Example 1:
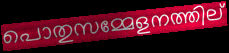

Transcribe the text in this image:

പൊതുസമ്മേളനത്തില്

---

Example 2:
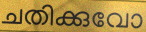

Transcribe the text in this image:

ചതിക്കുവോ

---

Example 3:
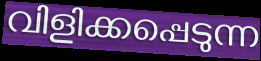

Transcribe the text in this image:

വിളിക്കപ്പെടുന്ന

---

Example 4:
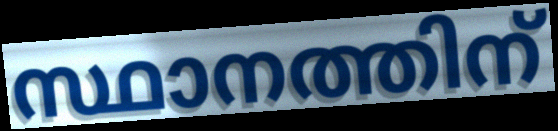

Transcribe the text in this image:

സ്ഥാനത്തിന്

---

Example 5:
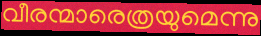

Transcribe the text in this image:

വീരന്മാരെത്രയുമെന്നു